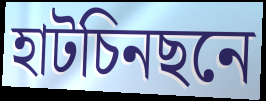
হাটচিনছনে